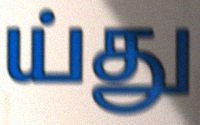
ய்து